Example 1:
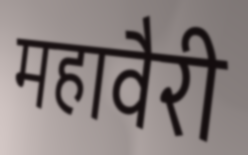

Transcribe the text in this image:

महावैरी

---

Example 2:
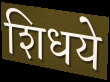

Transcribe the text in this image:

शिधये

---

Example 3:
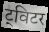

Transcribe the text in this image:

ट्‌विटर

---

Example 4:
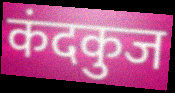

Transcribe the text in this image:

कंदकुज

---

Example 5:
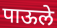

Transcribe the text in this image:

पाऊले